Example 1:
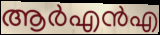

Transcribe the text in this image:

ആർഎൻഎ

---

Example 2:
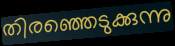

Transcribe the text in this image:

തിരഞ്ഞെടുക്കുന്നു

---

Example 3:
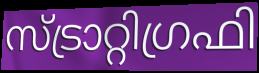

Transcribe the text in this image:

സ്ട്രാറ്റിഗ്രഫി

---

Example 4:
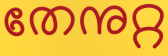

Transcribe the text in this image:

തേനുറ്റ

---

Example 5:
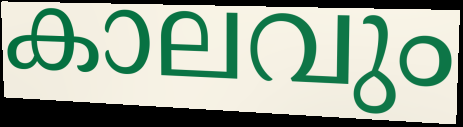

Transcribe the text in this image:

കാലവും